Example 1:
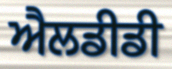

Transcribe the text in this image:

ਐਲਡੀਡੀ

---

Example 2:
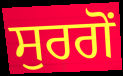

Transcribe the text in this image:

ਸੁਰਗੋਂ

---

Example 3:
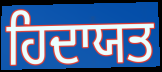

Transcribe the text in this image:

ਹਿਦਾਯਤ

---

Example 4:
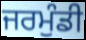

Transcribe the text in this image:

ਜਰਮੁੰਡੀ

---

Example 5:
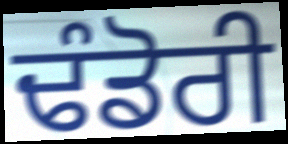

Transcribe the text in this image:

ਢੰਡੋਰੀ